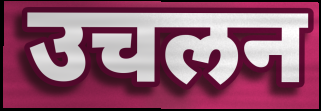
उचलन